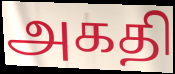
அகதி